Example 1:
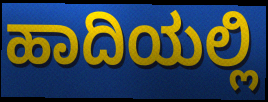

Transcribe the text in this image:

ಹಾದಿಯಲ್ಲಿ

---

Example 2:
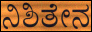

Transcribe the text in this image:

ನಿಶಿತೇನ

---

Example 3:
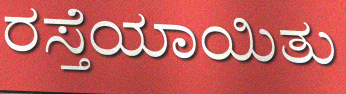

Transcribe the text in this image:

ರಸ್ತೆಯಾಯಿತು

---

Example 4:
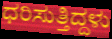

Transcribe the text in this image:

ಧರಿಸುತ್ತಿದ್ದಳು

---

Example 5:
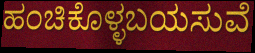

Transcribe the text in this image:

ಹಂಚಿಕೊಳ್ಳಬಯಸುವೆ